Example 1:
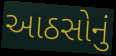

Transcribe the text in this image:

આઠસોનું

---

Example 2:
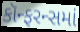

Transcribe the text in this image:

કૉન્ફરન્સમાં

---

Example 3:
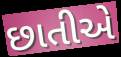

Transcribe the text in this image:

છાતીએ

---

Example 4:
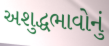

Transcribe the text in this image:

અશુદ્ધભાવોનું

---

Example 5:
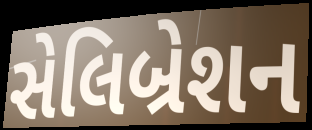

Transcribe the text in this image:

સેલિબ્રેશન